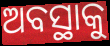
ଅବସ୍ଥାକୁ